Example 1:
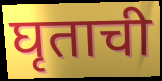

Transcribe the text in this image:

घृताची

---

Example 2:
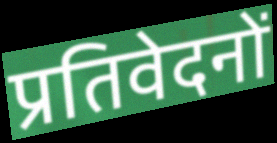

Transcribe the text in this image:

प्रतिवेदनों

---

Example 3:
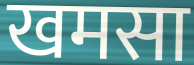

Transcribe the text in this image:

खमसा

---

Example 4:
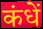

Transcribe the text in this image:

कंधें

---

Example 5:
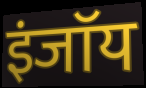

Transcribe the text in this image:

इंजॉय